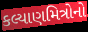
કલ્યાણમિત્રોનો